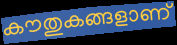
കൗതുകങ്ങളാണ്